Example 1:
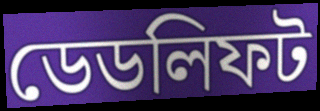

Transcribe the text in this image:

ডেডলিফট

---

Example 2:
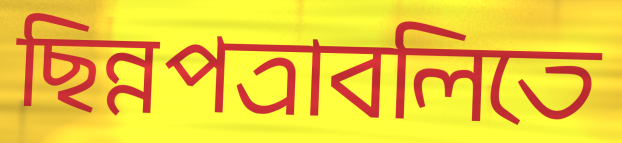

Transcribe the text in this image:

ছিন্নপত্রাবলিতে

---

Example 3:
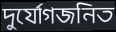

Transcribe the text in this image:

দুর্যোগজনিত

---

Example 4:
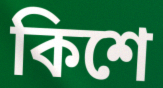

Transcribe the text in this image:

কিশে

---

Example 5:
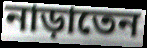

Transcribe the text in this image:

নাড়াতেন